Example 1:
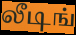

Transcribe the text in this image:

லீடிங்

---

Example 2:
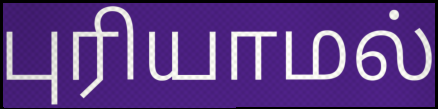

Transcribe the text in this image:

புரியாமல்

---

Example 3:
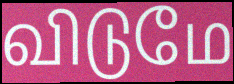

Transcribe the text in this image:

விடுமே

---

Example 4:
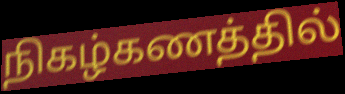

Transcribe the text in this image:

நிகழ்கணத்தில்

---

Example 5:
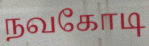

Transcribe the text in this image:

நவகோடி